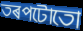
তৰপটোতো